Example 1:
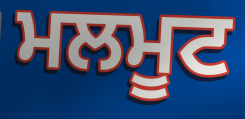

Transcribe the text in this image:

ਮਲਮੂਟ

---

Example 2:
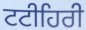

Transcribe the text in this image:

ਟਟੀਹਿਰੀ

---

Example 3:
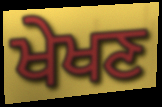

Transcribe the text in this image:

ਖੇਖਣ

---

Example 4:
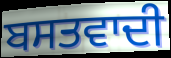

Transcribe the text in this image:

ਬਸਤਵਾਦੀ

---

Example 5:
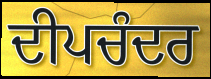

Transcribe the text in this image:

ਦੀਪਚੰਦਰ